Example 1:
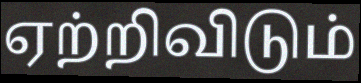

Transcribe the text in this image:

ஏற்றிவிடும்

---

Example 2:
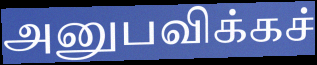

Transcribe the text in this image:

அனுபவிக்கச்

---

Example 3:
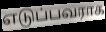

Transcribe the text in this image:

எடுப்பவராக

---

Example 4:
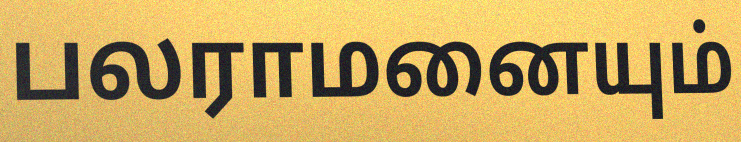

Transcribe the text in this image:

பலராமனையும்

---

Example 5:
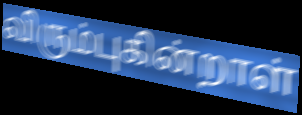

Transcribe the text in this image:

விரும்புகின்றாள்